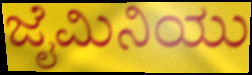
ಜೈಮಿನಿಯು